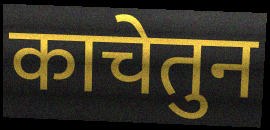
काचेतुन